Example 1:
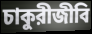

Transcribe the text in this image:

চাকুরীজীবি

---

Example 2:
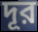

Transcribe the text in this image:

দূর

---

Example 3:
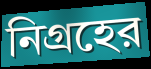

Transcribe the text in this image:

নিগ্রহের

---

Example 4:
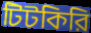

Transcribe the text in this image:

টিটকিরি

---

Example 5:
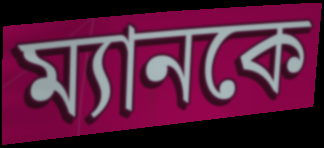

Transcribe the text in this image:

ম্যানকে